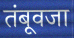
तंबूवजा